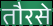
तौरसे